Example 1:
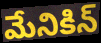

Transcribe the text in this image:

మేనికిన్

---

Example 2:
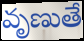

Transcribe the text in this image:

వృణుతే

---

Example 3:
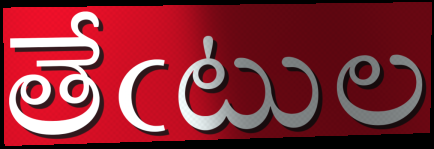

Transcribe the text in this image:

తేఁటుల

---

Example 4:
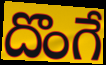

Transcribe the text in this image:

దొంగే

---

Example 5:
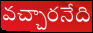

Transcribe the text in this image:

వచ్చారనేది